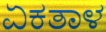
ಏಕತಾಳ